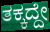
ತಕ್ಕದ್ದೇ